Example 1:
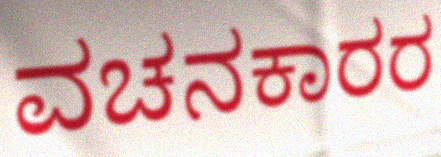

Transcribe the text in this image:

ವಚನಕಾರರ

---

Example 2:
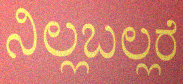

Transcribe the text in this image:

ನಿಲ್ಲಬಲ್ಲರೆ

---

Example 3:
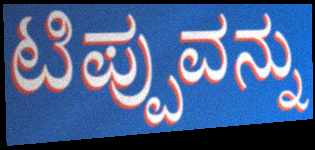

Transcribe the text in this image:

ಟಿಪ್ಪುವನ್ನು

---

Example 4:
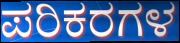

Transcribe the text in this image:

ಪರಿಕರಗಳ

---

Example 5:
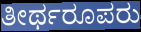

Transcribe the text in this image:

ತೀರ್ಥರೂಪರು